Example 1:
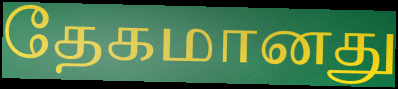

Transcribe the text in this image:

தேகமானது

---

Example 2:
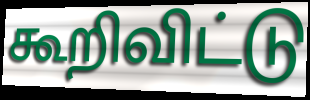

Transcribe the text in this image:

கூறிவிட்டு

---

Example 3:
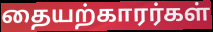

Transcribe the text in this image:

தையற்காரர்கள்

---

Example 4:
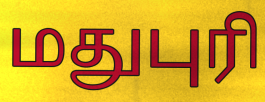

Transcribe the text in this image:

மதுபுரி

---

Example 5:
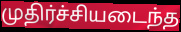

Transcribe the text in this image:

முதிர்ச்சியடைந்த